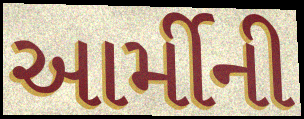
આર્મીની